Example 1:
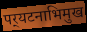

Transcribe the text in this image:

पर्यटनाभिमुख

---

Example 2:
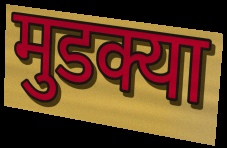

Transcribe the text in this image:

मुडक्या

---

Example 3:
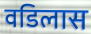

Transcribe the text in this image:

वडिलास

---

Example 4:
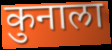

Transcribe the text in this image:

कुनाला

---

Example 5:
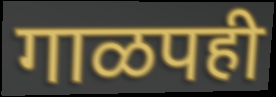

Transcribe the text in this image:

गाळपही